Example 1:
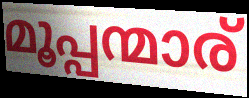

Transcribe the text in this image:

മൂപ്പന്മാര്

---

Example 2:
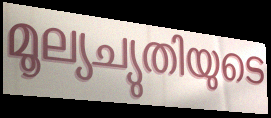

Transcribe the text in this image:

മൂല്യച്യുതിയുടെ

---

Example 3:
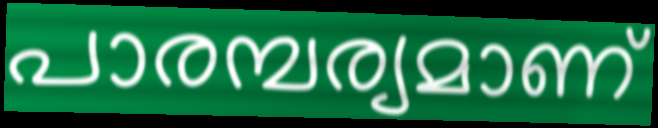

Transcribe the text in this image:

പാരമ്പര്യമാണ്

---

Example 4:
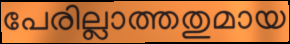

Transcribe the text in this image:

പേരില്ലാത്തതുമായ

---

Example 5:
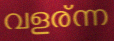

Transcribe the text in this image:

വളര്ന്ന